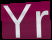
Yr